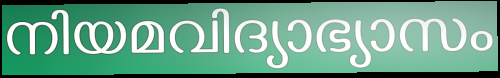
നിയമവിദ്യാഭ്യാസം